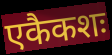
एकैकशः